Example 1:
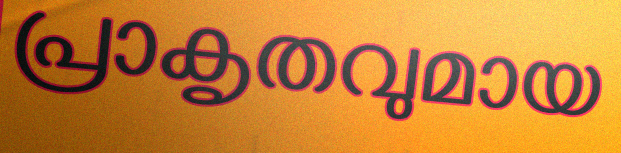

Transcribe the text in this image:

പ്രാകൃതവുമായ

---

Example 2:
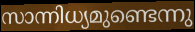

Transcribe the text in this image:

സാന്നിധ്യമുണ്ടെന്നു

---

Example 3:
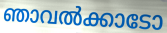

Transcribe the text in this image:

ഞാവൽക്കാടോ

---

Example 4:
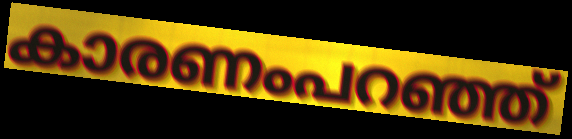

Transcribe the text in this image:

കാരണംപറഞ്ഞ്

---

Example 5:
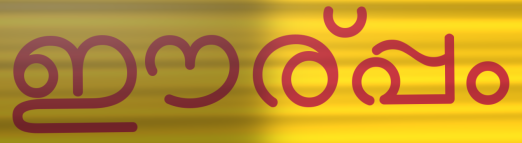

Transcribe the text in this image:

ഈര്പ്പം